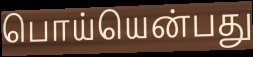
பொய்யென்பது